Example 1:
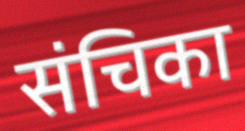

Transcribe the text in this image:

संचिका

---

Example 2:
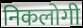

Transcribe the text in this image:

निकलोगी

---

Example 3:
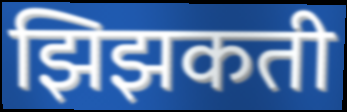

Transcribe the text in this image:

झिझकती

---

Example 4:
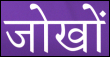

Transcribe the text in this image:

जोखों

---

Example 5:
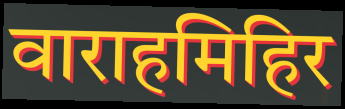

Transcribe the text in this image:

वाराहमिहिर